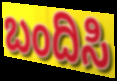
ಬಂದಿಸಿ